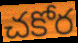
చకోర